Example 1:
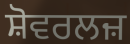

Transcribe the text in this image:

ਸ਼ੋਵਰਲਜ਼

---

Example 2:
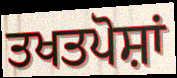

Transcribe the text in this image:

ਤਖਤਪੋਸ਼ਾਂ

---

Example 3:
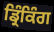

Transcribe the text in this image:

ਡ੍ਰਿੰਕਿੰਗ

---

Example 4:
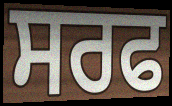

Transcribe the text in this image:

ਸਰਫ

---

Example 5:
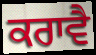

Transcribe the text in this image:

ਕਰਾਵੈ